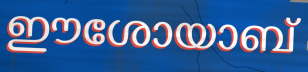
ഈശോയാബ്